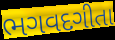
ભગવદગીતા